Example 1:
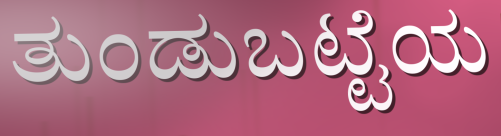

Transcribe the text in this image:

ತುಂಡುಬಟ್ಟೆಯ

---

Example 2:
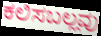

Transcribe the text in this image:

ಕಲಿಸಬಲ್ಲವು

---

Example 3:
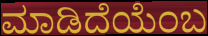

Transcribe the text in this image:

ಮಾಡಿದೆಯೆಂಬ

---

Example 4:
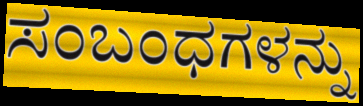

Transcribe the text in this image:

ಸಂಬಂಧಗಳನ್ನು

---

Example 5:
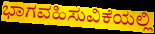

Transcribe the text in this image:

ಭಾಗವಹಿಸುವಿಕೆಯಲ್ಲಿ